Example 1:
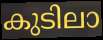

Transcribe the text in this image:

കുടിലാ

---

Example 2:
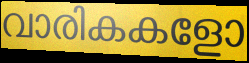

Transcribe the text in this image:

വാരികകളോ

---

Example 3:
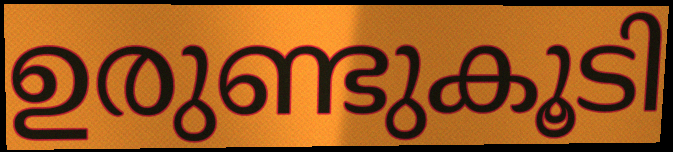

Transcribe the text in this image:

ഉരുണ്ടുകൂടി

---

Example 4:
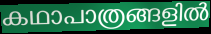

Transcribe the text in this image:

കഥാപാത്രങ്ങളിൽ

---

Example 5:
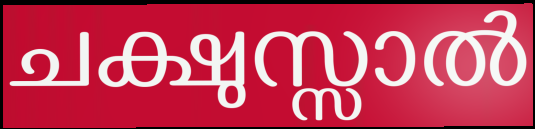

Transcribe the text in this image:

ചക്ഷുസ്സാൽ